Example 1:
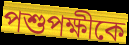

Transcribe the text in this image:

পশুপক্ষীকে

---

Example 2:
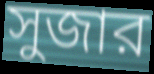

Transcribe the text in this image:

সুজার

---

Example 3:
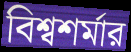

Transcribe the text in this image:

বিশ্বশর্মার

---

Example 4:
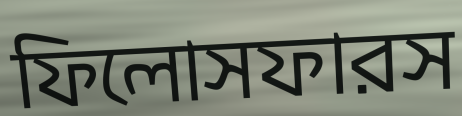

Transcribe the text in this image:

ফিলোসফারস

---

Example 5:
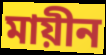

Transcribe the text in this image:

মায়ীন